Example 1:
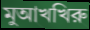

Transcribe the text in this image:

মুআখখিরু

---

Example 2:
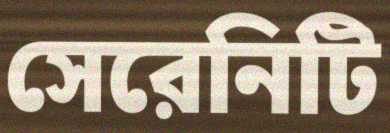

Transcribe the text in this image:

সেরেনিটি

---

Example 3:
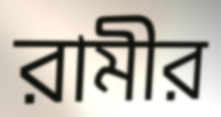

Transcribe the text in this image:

রামীর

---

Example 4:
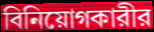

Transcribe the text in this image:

বিনিয়োগকারীর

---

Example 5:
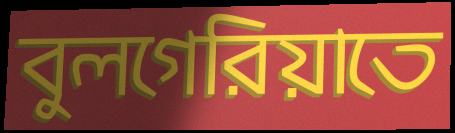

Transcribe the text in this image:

বুলগেরিয়াতে